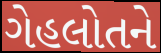
ગેહલોતને